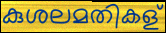
കുശലമതികള്